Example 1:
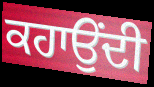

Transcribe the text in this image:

ਕਹਾਉਂਦੀ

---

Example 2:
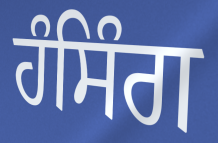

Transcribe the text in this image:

ਹੰਸਿੰਗ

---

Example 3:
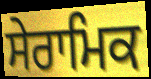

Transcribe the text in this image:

ਸੇਰਾਮਿਕ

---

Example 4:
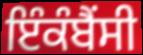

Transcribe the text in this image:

ਇੰਕੰਬੈਂਸੀ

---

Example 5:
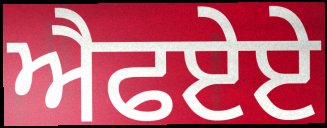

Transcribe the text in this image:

ਐਫਏਏ